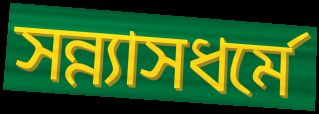
সন্ন্যাসধর্মে